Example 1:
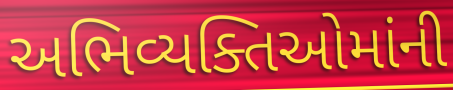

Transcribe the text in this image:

અભિવ્યક્તિઓમાંની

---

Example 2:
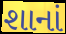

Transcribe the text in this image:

શાનાં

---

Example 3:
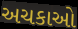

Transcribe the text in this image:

અચકાઓ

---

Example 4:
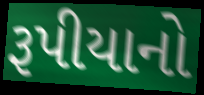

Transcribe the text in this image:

રૂપીયાનો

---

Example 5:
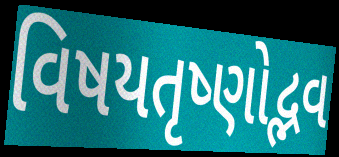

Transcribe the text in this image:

વિષયતૃષ્ણોદ્ભવ